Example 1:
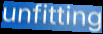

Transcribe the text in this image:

unfitting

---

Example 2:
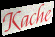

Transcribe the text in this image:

Kache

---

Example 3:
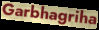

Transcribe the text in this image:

Garbhagriha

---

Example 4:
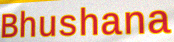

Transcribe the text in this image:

Bhushana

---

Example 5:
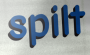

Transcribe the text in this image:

spilt